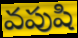
వపుషి